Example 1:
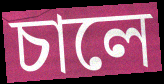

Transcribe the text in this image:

চালে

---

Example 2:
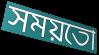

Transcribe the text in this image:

সময়তো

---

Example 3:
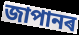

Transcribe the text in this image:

জাপানৰ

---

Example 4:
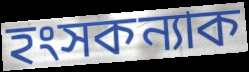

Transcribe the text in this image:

হংসকন্যাক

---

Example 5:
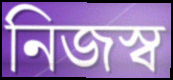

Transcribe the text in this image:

নিজস্ব